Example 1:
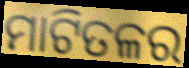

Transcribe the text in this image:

ମାଟିତଳର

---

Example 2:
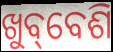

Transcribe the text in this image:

ଖୁବ୍‌ବେଶି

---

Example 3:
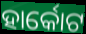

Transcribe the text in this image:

ହାର୍କୋଟ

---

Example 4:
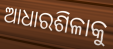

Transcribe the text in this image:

ଆଧାରଶିଳାକୁ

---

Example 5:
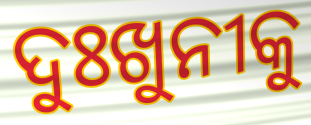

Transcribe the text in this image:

ଦୁଃଖୁନୀକୁ